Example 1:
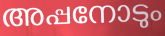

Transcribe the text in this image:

അപ്പനോടും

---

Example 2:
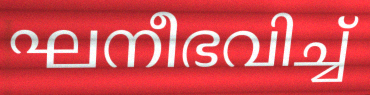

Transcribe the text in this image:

ഘനീഭവിച്ച്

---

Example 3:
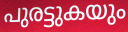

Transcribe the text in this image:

പുരട്ടുകയും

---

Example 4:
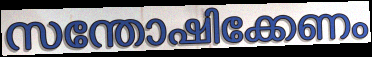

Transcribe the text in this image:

സന്തോഷിക്കേണം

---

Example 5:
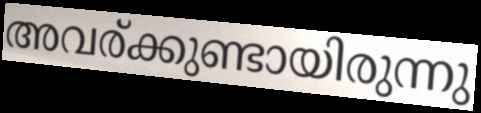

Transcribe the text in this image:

അവര്ക്കുണ്ടായിരുന്നു